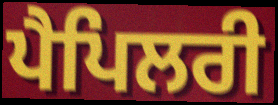
ਪੈਪਿਲਰੀ